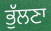
ਭੁੱਲਣਾ